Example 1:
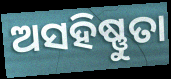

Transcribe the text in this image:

ଅସହିଷ୍ଣୁତା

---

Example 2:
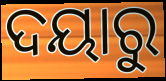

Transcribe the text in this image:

ଦୟାରୁ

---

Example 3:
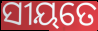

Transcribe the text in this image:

ସୀୟତେ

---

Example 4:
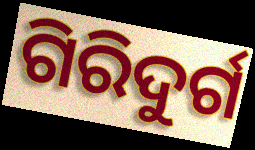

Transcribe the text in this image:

ଗିରିଦୁର୍ଗ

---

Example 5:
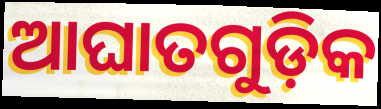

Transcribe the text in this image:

ଆଘାତଗୁଡ଼ିକ